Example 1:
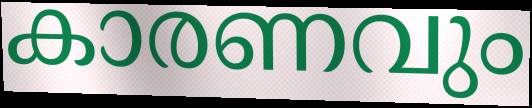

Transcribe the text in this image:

കാരണവും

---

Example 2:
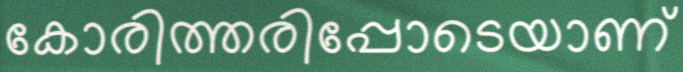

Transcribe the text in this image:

കോരിത്തരിപ്പോടെയാണ്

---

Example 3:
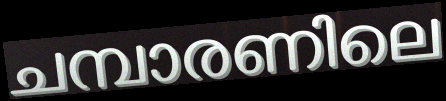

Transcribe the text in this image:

ചമ്പാരണിലെ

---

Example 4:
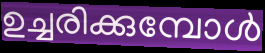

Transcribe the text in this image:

ഉച്ചരിക്കുമ്പോൾ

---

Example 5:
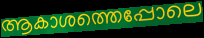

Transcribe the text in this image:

ആകാശത്തെപ്പോലെ